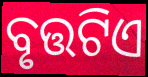
ବୃତ୍ତଟିଏ